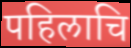
पहिलाचि